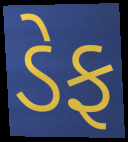
ડેફ